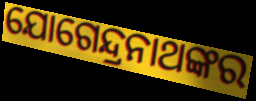
ଯୋଗେନ୍ଦ୍ରନାଥଙ୍କର